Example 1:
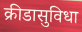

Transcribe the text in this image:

क्रीडासुविधा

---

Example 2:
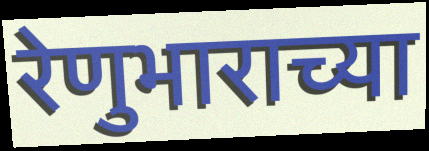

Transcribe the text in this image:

रेणुभाराच्या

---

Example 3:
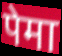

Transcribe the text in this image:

पेमा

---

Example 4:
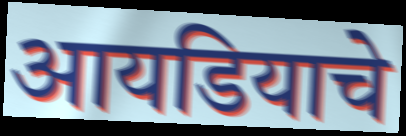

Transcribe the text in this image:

आयडियाचे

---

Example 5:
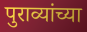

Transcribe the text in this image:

पुराव्यांच्या